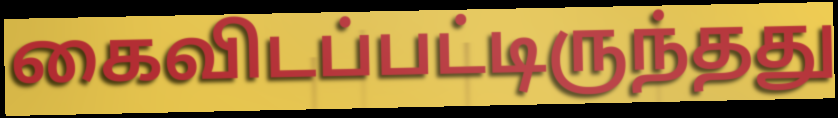
கைவிடப்பட்டிருந்தது